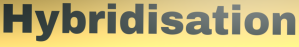
Hybridisation